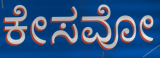
ಕೇಸವೋ